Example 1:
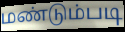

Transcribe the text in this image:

மண்டும்படி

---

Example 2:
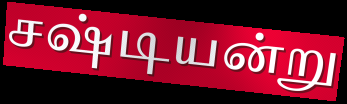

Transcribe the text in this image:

சஷ்டியன்று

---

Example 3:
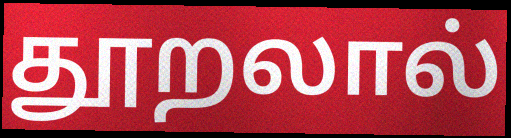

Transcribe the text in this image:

தூறலால்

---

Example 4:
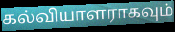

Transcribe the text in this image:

கல்வியாளராகவும்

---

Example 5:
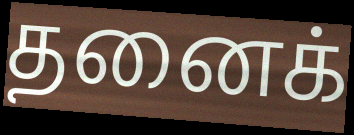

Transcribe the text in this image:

தனைக்